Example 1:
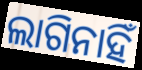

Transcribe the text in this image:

ଲାଗିନାହିଁ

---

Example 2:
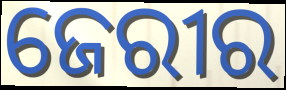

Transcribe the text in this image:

ଜେରୀର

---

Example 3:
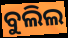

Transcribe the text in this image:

ବୁଲିଲ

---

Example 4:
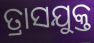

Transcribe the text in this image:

ତ୍ରାସଯୁକ୍ତ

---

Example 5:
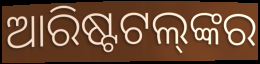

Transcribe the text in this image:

ଆରିଷ୍ଟଟଲ୍‌ଙ୍କର